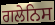
ਗਲੇਨਿਸ